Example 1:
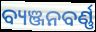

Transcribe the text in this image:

ବ୍ୟଞ୍ଜନବର୍ଣ୍ଣ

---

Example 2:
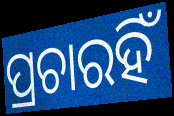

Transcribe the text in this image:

ପ୍ରଚାରହିଁ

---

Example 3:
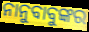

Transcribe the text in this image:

ନାନୁବାବୁଙ୍କର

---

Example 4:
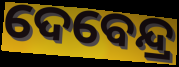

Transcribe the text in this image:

ଦେବେନ୍ଦ୍ର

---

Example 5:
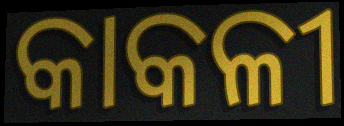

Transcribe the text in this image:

କାକଳୀ